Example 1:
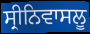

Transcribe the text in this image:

ਸ੍ਰੀਨਿਵਾਸਲੂ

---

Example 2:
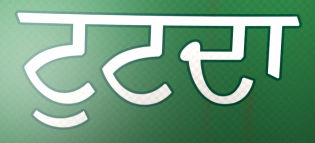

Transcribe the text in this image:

ਟੁਟਦਾ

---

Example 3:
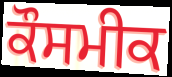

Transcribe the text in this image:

ਕੌਸਮੀਕ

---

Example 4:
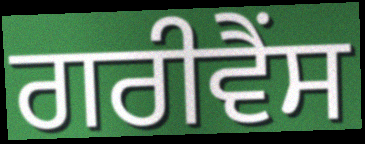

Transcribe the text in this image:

ਗਰੀਵੈਂਸ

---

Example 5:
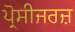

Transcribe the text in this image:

ਪ੍ਰੋਸੀਜਰਜ਼